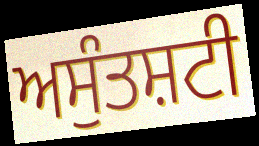
ਅਸੁੰਤਸ਼ਟੀ